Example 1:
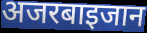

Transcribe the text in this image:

अजरबाइजान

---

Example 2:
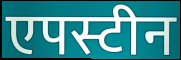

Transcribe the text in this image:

एपस्टीन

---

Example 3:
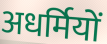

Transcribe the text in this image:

अधर्मियों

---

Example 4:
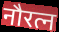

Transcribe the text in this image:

नौरत्न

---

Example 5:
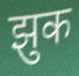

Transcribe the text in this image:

झुक